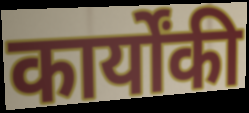
कार्योंकी